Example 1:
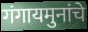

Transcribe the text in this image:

गंगायमुनांचे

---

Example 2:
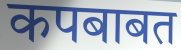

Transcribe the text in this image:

कपबाबत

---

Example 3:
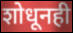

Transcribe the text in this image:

शोधूनही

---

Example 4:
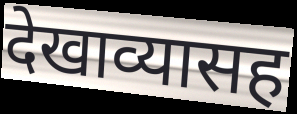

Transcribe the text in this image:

देखाव्यासह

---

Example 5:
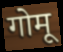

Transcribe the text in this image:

गोमू